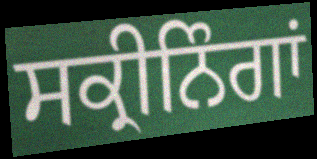
ਸਕ੍ਰੀਨਿੰਗਾਂ